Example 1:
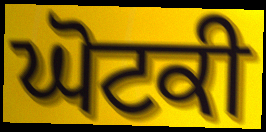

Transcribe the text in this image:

ਘੋਟਕੀ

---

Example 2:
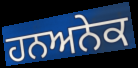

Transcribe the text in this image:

ਹਨਅਨੇਕ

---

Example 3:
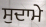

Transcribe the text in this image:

ਸੁਦਾਮੇ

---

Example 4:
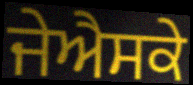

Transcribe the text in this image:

ਜੇਐਸਕੇ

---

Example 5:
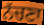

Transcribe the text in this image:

ਨੱਚਣਾ